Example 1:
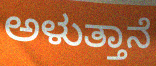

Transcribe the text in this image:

ಅಳುತ್ತಾನೆ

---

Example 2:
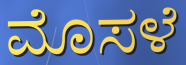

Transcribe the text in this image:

ಮೊಸಳೆ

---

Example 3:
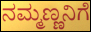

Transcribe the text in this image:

ನಮ್ಮಣ್ಣನಿಗೆ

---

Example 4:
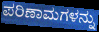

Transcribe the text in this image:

ಪರಿಣಾಮಗಳನ್ನು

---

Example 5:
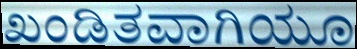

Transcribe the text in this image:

ಖಂಡಿತವಾಗಿಯೂ